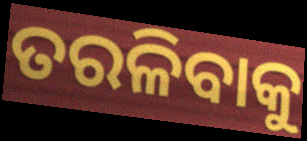
ତରଳିବାକୁ